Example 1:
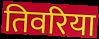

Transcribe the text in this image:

तिवरिया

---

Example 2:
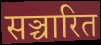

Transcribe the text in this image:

सञ्चारित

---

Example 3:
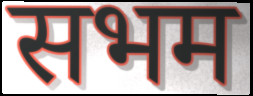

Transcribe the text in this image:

सभम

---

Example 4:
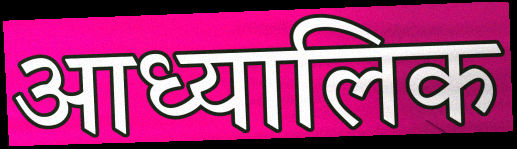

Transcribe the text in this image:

आध्यालिक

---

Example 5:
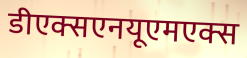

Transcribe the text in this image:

डीएक्सएनयूएमएक्स